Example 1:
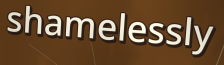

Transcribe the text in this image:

shamelessly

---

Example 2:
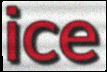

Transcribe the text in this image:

ice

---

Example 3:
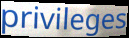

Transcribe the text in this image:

privileges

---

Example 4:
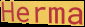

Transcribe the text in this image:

Herma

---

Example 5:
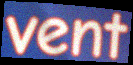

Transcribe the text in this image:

vent